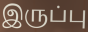
இருப்பு